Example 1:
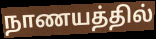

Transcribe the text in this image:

நாணயத்தில்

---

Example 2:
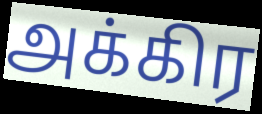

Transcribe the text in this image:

அக்கிர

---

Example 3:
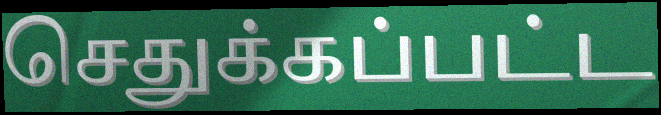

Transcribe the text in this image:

செதுக்கப்பட்ட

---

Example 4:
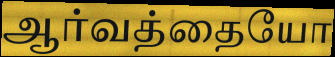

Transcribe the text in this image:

ஆர்வத்தையோ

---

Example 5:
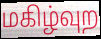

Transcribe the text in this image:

மகிழ்வுற